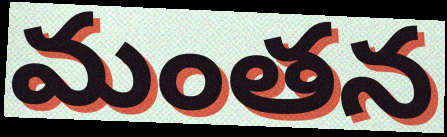
మంతన